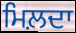
ਮਿਲ਼ਦਾ